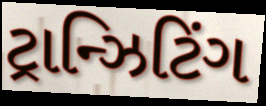
ટ્રાન્ઝિટિંગ